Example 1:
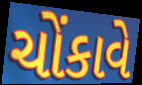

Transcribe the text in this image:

ચોંકાવે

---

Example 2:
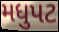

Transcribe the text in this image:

મધુપટ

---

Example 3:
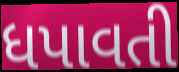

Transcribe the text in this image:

ધપાવતી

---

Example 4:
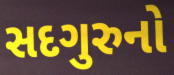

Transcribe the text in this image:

સદગુરુનો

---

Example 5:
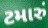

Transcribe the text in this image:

ટમારું